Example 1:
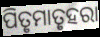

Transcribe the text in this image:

ପିତୃମାତୃହରା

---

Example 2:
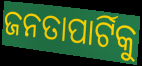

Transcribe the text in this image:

ଜନତାପାର୍ଟିକୁ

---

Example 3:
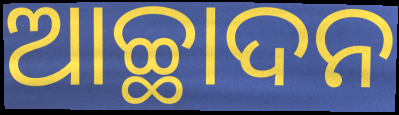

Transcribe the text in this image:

ଆଚ୍ଛାଦନ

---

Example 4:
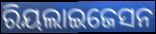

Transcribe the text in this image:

ରିୟଲାଇଜେସନ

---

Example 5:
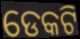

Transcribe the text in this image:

ଡେକଟି